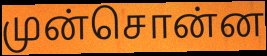
முன்சொன்ன